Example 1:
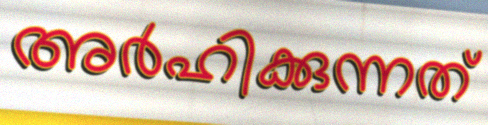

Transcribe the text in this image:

അർഹിക്കുന്നത്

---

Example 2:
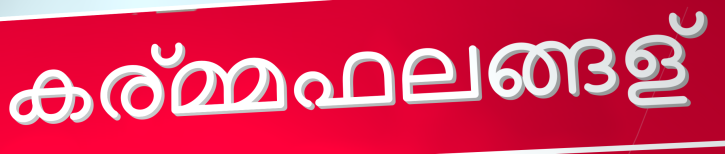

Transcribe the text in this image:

കര്മ്മഫലങ്ങള്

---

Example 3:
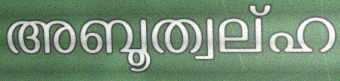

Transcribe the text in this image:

അബൂത്വല്ഹ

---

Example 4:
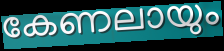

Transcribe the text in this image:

കേണലായും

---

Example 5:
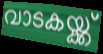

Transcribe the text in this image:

വാടകയ്ക്ക്